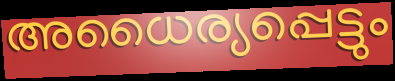
അധൈര്യപ്പെട്ടും